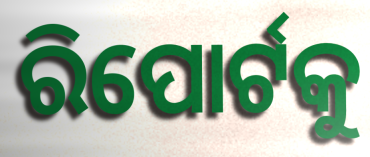
ରିପୋର୍ଟକୁ